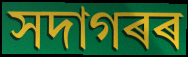
সদাগৰৰ